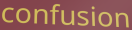
confusion